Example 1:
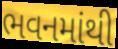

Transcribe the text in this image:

ભવનમાંથી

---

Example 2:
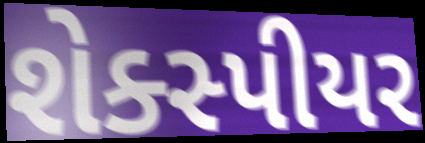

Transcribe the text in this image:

શેક્સ્પીયર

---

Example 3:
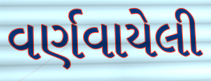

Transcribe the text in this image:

વર્ણવાયેલી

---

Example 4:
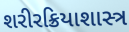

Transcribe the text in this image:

શરીરક્રિયાશાસ્ત્ર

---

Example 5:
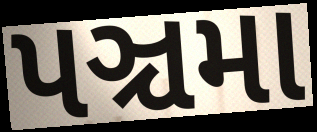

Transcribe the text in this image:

પઞ્ચમા